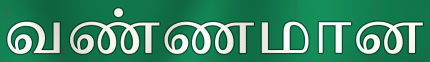
வண்ணமான